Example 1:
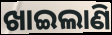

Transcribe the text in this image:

ଖାଇଲାଣି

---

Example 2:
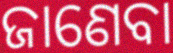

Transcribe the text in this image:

ଜାଣେବା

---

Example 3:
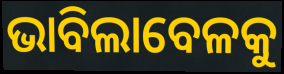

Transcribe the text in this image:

ଭାବିଲାବେଳକୁ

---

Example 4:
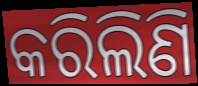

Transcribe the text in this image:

କରିଲିଣି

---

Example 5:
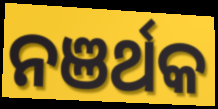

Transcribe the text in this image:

ନଞର୍ଥକ